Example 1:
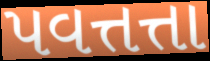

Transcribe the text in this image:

પવત્તત્તા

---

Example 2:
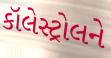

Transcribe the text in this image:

કૉલેસ્ટ્રોલને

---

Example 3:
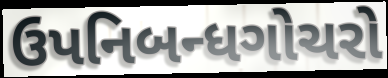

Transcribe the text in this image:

ઉપનિબન્ધગોચરો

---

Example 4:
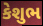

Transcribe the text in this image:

કેશુભ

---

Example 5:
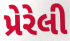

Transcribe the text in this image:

પ્રેરેલી